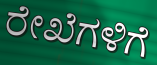
ರೇಖೆಗಳಿಗೆ